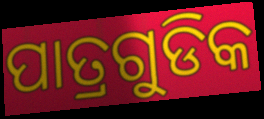
ପାତ୍ରଗୁଡିକ